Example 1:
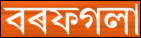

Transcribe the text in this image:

বৰফগলা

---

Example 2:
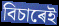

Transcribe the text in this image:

বিচাৰেই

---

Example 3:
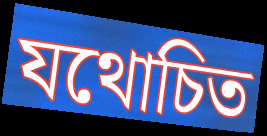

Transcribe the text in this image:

যথোচিত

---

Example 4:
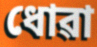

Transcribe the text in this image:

ধোৱা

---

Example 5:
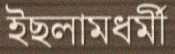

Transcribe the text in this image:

ইছলামধৰ্মী